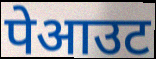
पेआउट